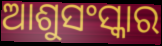
ଆଶୁସଂସ୍କାର